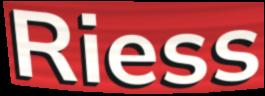
Riess